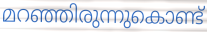
മറഞ്ഞിരുന്നുകൊണ്ട്